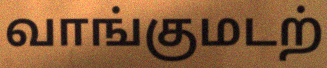
வாங்குமடற்